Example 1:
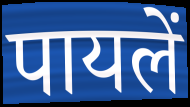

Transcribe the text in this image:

पायलें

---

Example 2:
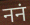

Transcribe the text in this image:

ननं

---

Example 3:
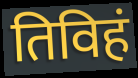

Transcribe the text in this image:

तिविहं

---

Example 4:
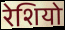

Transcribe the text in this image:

रेशियो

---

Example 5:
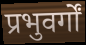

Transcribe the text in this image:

प्रभुवर्गों